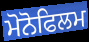
ਮੋਨੋਫਿਲਮ